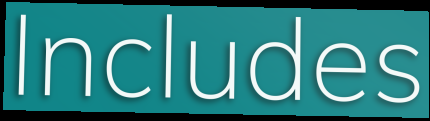
Includes